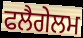
ਫਲੈਗੇਲਮ